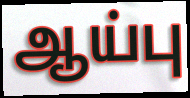
ஆய்பு